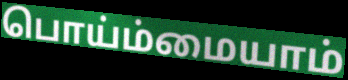
பொய்ம்மையாம்